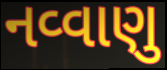
નવ્વાણુ